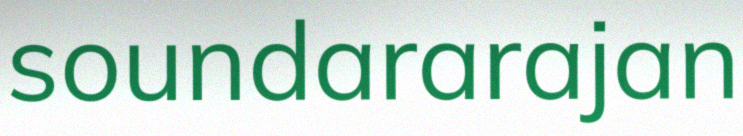
soundararajan